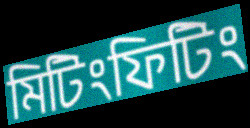
মিটিংফিটিং